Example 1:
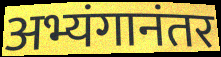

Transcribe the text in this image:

अभ्यंगानंतर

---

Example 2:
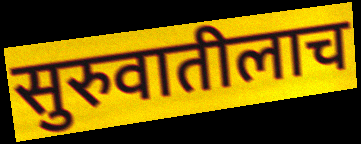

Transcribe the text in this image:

सुरुवातीलाच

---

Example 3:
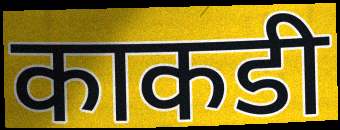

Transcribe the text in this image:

काकडी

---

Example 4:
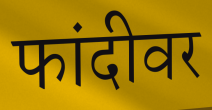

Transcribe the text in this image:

फांदीवर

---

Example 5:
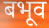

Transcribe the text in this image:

बभूव